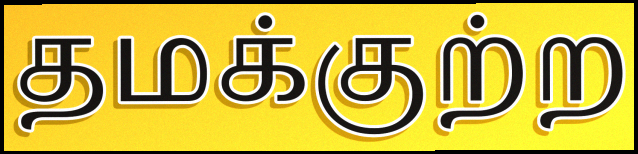
தமக்குற்ற